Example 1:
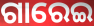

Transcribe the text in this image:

ଗାରେଇ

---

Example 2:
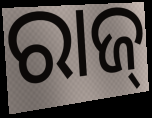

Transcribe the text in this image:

ରାଜ୍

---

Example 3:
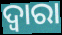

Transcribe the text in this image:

ଦ୍ଵାରା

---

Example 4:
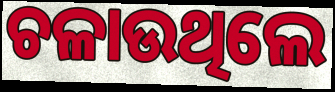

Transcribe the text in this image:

ଚଳାଉଥିଲେ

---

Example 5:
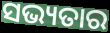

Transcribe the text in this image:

ସଭ୍ୟତାର